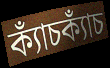
ক্যাঁচক্যাঁচ